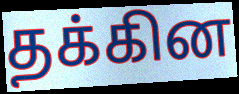
தக்கின